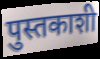
पुस्तकाशी